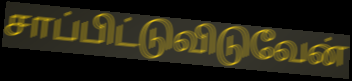
சாப்பிட்டுவிடுவேன்